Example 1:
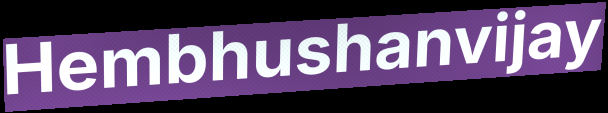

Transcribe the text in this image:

Hembhushanvijay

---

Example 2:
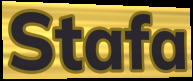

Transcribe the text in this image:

Stafa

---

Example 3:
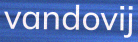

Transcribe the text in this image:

vandovij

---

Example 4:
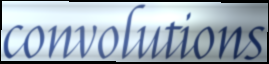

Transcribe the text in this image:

convolutions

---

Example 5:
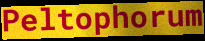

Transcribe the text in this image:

Peltophorum